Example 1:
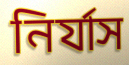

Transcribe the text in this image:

নিৰ্যাস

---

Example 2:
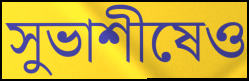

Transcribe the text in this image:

সুভাশীষেও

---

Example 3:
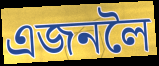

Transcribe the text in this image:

এজনলৈ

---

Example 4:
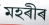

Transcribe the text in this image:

মহৰীৰ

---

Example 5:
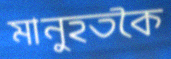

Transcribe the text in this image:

মানুহতকৈ